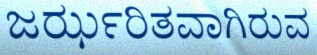
ಜರ್ಝರಿತವಾಗಿರುವ